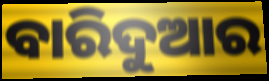
ବାରିଦୁଆର